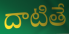
దాటితే